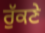
ਰੁੱਕਣੇ